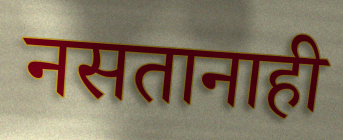
नसतानाही